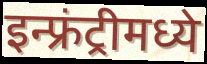
इन्फ्रंट्रीमध्ये